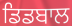
ਡਿਡਬਾਲ